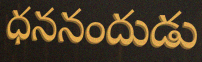
ధననందుడు